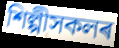
শিল্পীসকলৰ